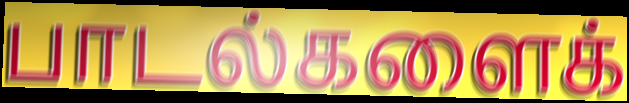
பாடல்களைக்